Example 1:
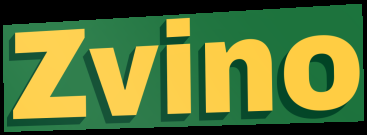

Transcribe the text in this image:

Zvino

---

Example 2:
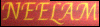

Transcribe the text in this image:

NEELAM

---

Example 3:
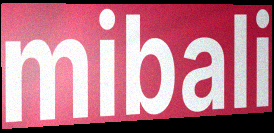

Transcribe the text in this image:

mibali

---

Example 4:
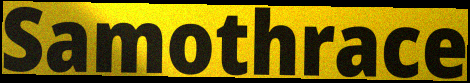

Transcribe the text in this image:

Samothrace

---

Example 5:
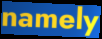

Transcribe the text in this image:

namely